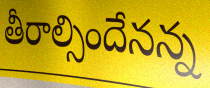
తీరాల్సిందేనన్న